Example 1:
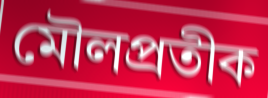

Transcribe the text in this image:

মৌলপ্রতীক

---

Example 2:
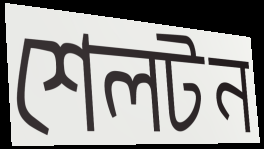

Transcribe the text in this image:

শেলটন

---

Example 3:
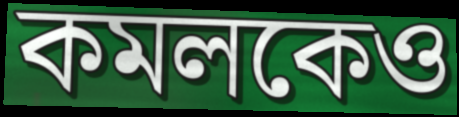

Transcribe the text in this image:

কমলকেও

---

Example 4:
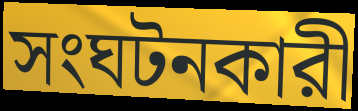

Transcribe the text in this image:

সংঘটনকারী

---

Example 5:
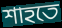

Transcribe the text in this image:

শাহতে